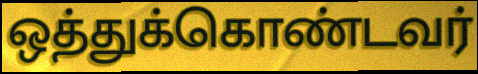
ஒத்துக்கொண்டவர்